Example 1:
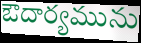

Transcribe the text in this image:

ఔదార్యమును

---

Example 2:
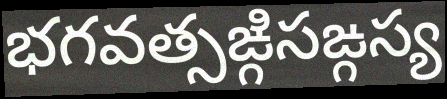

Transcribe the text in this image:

భగవత్సఙ్గిసఙ్గస్య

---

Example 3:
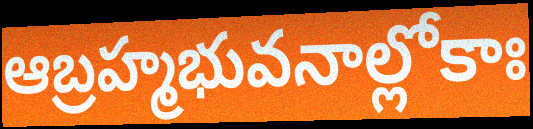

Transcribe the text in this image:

ఆబ్రహ్మభువనాల్లోకాః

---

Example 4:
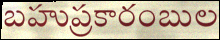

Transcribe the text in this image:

బహుప్రకారంబుల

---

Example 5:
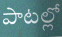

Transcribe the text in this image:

పాటల్లో